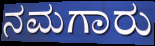
ನಮಗಾರು